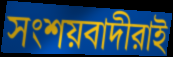
সংশয়বাদীরাই